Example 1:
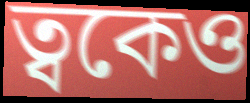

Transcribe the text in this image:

ত্বকেও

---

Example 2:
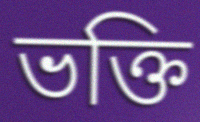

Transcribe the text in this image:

ভক্তি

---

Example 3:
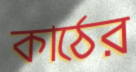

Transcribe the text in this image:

কাঠের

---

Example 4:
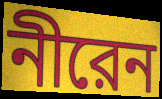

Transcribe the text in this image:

নীরেন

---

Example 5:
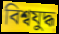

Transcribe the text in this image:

বিশ্বযুদ্ধ